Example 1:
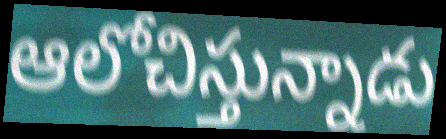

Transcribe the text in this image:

ఆలోచిస్తున్నాడు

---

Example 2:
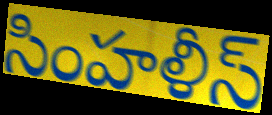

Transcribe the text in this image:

సింహళీస్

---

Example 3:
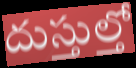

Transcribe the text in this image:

దుస్తుల్తో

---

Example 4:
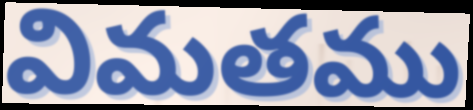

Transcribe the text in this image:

విమతము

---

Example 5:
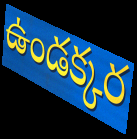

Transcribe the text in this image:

ఉండక్కర